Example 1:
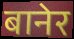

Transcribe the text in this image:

बानेर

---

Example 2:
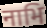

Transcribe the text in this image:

नाभि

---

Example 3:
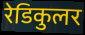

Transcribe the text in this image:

रेडिकुलर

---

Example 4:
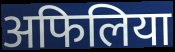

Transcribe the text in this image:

अफिलिया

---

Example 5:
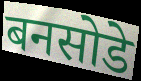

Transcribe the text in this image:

बनसोडे